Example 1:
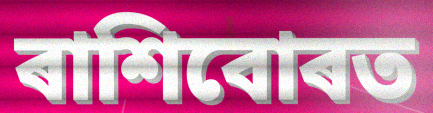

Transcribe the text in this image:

ৰাশিবোৰত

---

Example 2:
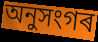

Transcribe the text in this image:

অনুসংগৰ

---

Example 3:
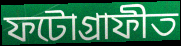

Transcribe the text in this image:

ফটোগ্ৰাফীত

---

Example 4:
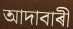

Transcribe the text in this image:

আদাবাৰী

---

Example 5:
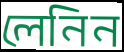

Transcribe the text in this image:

লেনিন